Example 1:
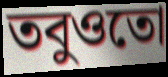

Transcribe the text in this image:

তবুওতো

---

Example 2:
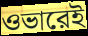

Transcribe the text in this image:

ওভারেই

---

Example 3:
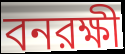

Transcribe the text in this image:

বনরক্ষী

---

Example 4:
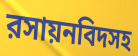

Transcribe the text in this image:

রসায়নবিদসহ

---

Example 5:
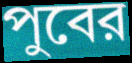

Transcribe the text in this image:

পুবের